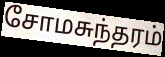
சோமசுந்தரம்